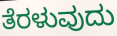
ತೆರಳುವುದು